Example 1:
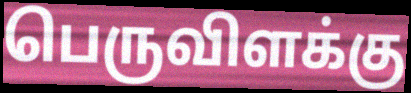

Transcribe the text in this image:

பெருவிளக்கு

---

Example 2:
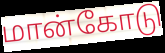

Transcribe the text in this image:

மான்கோடு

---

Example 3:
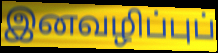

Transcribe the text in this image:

இனவழிப்புப்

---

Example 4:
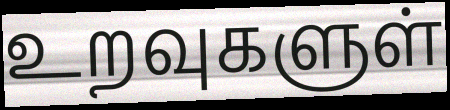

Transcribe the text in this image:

உறவுகளுள்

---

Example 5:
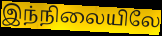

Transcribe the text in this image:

இந்நிலையிலே